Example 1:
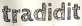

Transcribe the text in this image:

tradidit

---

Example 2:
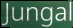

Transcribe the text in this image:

Jungal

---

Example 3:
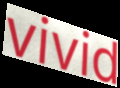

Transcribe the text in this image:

vivid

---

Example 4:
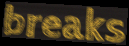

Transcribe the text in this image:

breaks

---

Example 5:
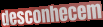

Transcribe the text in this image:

desconhecem